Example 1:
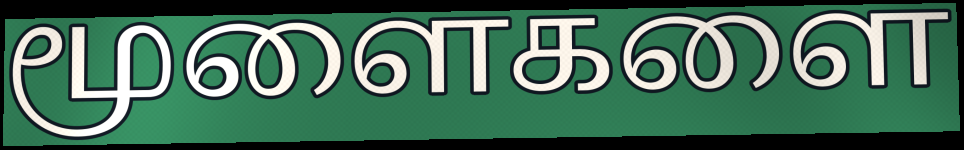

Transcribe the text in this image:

மூளைகளை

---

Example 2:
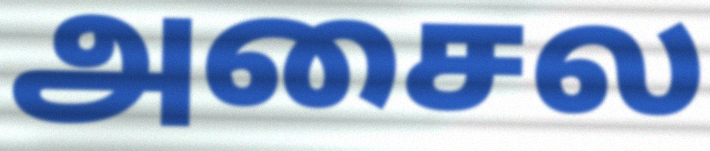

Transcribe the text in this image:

அசைல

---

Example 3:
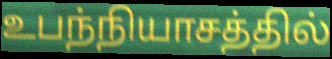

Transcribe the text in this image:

உபந்நியாசத்தில்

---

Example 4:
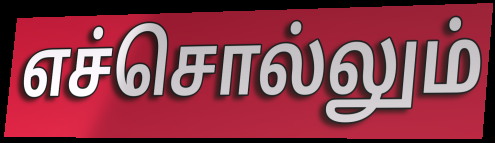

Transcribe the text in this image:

எச்சொல்லும்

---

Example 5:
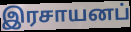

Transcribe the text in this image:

இரசாயனப்